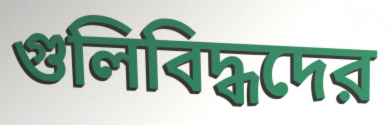
গুলিবিদ্ধদের